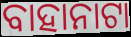
ବାହାନାଟା